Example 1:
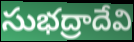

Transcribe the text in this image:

సుభద్రాదేవి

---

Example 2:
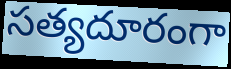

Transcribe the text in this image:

సత్యదూరంగా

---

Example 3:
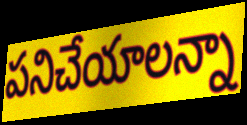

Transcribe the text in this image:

పనిచేయాలన్నా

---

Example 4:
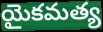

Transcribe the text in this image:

యైకమత్య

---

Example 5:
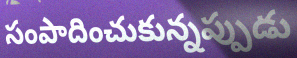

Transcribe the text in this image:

సంపాదించుకున్నప్పుడు